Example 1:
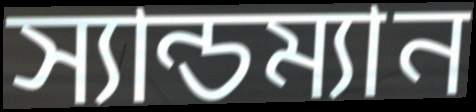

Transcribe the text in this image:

স্যান্ডম্যান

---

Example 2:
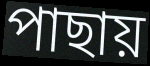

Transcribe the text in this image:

পাছায়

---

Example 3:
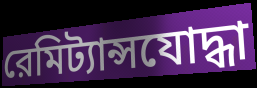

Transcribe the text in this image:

রেমিট্যান্সযোদ্ধা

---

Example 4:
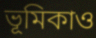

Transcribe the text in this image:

ভূমিকাও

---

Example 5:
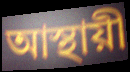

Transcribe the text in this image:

আস্থায়ী